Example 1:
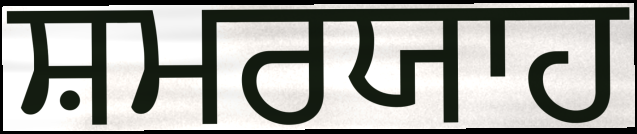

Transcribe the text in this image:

ਸ਼ਮਰਯਾਹ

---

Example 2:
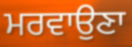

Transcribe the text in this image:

ਮਰਵਾਉਣਾ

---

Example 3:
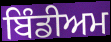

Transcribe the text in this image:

ਬਿੰਡੀਅਮ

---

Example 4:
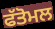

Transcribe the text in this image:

ਫੱਤੋਮਲ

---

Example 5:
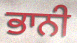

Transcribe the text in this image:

ਭਾਨੀ